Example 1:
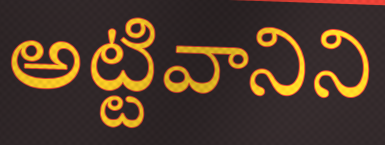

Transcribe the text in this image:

అట్టివానిని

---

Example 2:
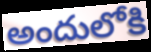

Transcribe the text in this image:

అందులోకి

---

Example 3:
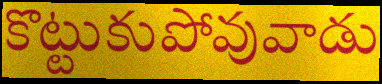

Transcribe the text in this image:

కొట్టుకుపోవువాడు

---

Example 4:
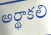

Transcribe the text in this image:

అర్థాకలి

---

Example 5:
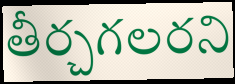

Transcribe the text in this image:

తీర్చగలరని